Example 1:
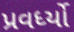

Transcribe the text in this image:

પ્રવર્ધ્યો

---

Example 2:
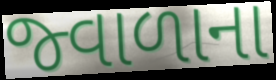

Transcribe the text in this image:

જ્વાળાના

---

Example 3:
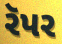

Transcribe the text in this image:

રૅપર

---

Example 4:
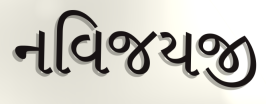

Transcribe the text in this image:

નવિજયજી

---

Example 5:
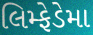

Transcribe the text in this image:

લિમ્ફેડેમા